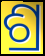
ଶ୍ର